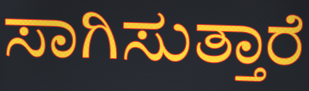
ಸಾಗಿಸುತ್ತಾರೆ